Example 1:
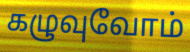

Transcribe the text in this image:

கழுவுவோம்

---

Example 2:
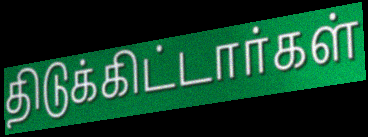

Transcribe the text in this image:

திடுக்கிட்டார்கள்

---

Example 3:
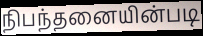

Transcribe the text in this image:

நிபந்தனையின்படி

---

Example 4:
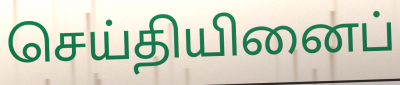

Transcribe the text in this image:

செய்தியினைப்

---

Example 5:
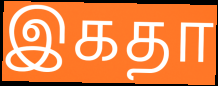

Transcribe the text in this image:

இகதா